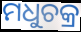
ମଧୁଚକ୍ର